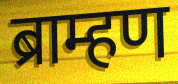
ब्राम्हण